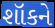
શૉકને